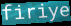
firiye